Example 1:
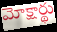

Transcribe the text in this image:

మోక్షార్థు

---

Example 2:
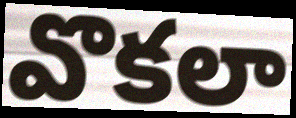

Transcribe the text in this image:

వొకలా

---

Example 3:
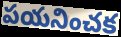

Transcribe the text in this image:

పయనించక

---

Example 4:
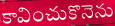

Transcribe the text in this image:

కావించుకొనెను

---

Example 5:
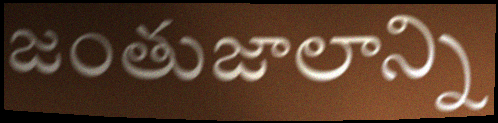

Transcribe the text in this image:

జంతుజాలాన్ని